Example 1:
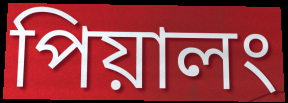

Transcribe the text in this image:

পিয়ালং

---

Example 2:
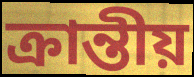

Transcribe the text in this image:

ক্রান্তীয়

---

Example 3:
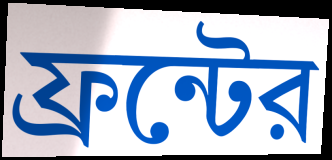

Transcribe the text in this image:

ফ্রন্টের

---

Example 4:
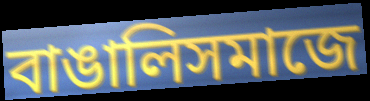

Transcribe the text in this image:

বাঙালিসমাজে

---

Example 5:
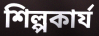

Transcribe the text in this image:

শিল্পকার্য